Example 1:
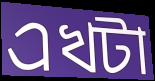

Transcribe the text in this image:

এখটা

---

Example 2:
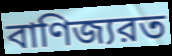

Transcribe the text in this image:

বাণিজ্যরত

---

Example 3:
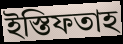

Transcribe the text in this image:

ইস্তিফতাহ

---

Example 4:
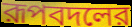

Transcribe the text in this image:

রূপবদলের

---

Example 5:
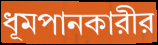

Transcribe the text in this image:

ধূমপানকারীর